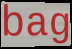
bag